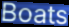
Boats